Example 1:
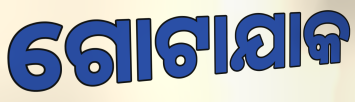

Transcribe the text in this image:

ଗୋଟାଯାକ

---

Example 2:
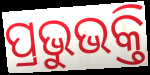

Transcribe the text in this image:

ପ୍ରଭୁଭକ୍ତି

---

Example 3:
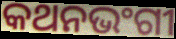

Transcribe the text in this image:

କଥନଭଂଗୀ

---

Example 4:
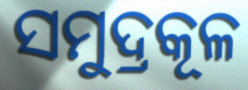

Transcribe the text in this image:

ସମୁଦ୍ରକୂଳ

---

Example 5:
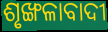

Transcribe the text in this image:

ଶୃଙ୍ଖଳାବାଦୀ